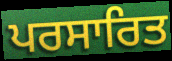
ਪਰਸਾਰਿਤ